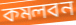
কমলবন